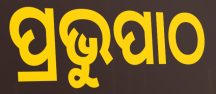
ପ୍ରଭୁପାଠ